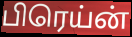
பிரெய்ன்